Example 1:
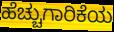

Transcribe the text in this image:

ಹೆಚ್ಚುಗಾರಿಕೆಯ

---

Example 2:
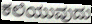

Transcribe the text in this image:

ಕಲಿಯುವುದು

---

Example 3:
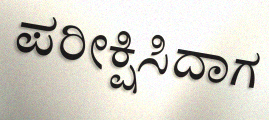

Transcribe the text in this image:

ಪರೀಕ್ಷಿಸಿದಾಗ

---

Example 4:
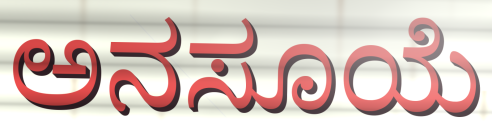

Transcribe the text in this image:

ಅನಸೂಯೆ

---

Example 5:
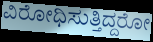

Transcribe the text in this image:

ವಿರೋಧಿಸುತ್ತಿದ್ದರೋ